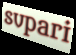
supari